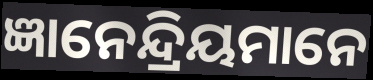
ଜ୍ଞାନେନ୍ଦ୍ରିୟମାନେ